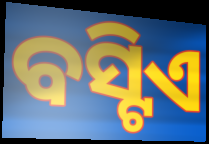
ବସ୍ଟିଏ